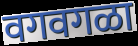
वगवगळा